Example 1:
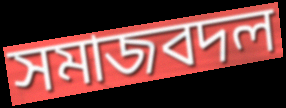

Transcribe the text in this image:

সমাজবদল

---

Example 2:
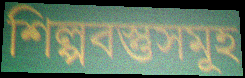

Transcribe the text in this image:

শিল্পবস্তুসমূহ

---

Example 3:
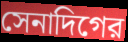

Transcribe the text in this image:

সেনাদিগের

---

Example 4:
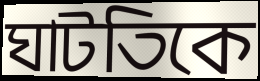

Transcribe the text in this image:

ঘাটতিকে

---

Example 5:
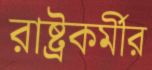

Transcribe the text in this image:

রাষ্ট্রকর্মীর